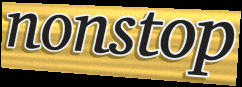
nonstop